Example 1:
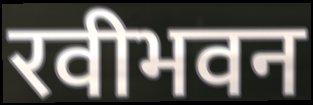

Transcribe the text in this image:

रवीभवन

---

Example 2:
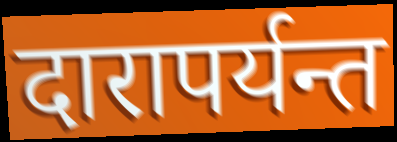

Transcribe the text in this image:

दारापर्यन्त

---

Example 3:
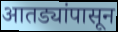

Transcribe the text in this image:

आतड्यांपासून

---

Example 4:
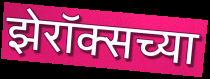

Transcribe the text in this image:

झेरॉक्सच्या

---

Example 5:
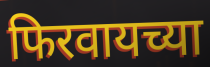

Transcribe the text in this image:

फिरवायच्या